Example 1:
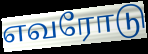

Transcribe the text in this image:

எவரோடு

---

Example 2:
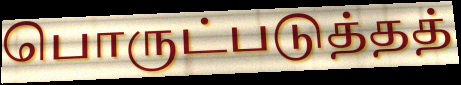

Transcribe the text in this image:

பொருட்படுத்தத்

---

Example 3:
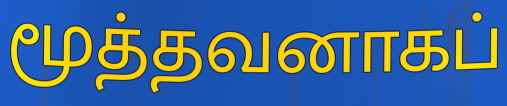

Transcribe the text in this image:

மூத்தவனாகப்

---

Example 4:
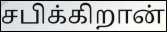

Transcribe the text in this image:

சபிக்கிறான்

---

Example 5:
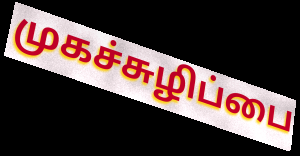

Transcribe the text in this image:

முகச்சுழிப்பை